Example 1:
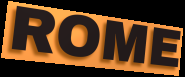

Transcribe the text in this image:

ROME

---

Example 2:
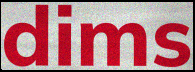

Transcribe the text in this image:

dims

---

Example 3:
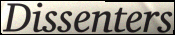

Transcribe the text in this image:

Dissenters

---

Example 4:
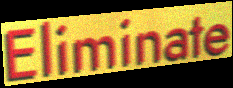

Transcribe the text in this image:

Eliminate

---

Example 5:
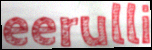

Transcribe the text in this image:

eerulli